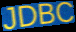
JDBC